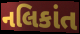
નલિકાંત